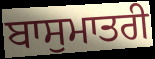
ਬਾਸੁਮਾਤਰੀ